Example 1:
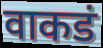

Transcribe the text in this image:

वाकडं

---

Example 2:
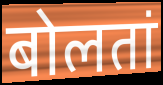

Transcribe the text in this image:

बोलतां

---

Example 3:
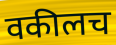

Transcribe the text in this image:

वकीलच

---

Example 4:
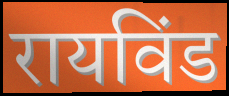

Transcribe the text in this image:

रायविंड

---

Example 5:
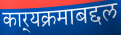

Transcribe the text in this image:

कार्यक्रमाबद्दल